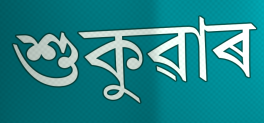
শুকুৱাৰ